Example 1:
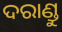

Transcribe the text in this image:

ଦରାଣ୍ଡୁ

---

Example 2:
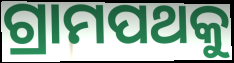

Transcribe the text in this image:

ଗ୍ରାମପଥକୁ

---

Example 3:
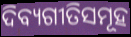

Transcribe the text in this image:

ଦିବ୍ୟଗୀତିସମୂହ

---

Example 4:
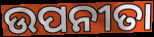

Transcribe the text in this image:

ଉପନୀତା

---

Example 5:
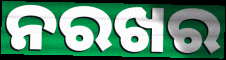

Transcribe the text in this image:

ନରଖର